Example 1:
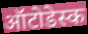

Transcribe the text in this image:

ऑटोडेस्क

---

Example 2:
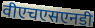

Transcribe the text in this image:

वीएचएसएनडी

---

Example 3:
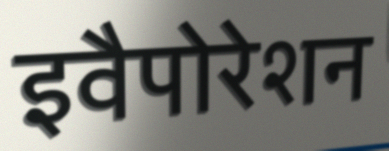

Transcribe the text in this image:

इवैपोरेशन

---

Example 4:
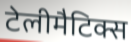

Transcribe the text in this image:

टेलीमैटिक्स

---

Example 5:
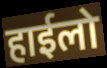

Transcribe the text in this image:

हाईलो